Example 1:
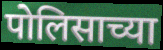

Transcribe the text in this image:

पोलिसाच्या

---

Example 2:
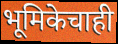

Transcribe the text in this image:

भूमिकेचाही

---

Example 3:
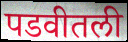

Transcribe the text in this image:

पडवीतली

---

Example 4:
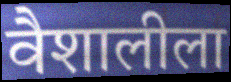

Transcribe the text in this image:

वैशालीला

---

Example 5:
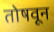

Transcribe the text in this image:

तोषवून